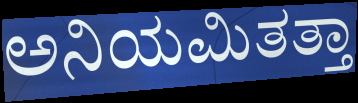
ಅನಿಯಮಿತತ್ತಾ